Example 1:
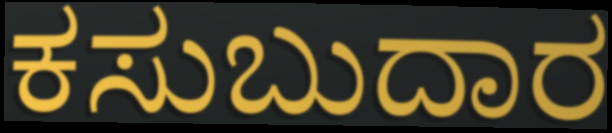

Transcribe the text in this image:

ಕಸುಬುದಾರ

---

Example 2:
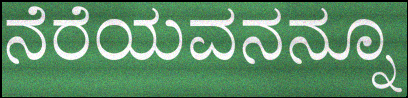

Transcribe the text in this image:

ನೆರೆಯವನನ್ನೂ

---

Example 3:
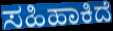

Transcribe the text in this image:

ಸಹಿಹಾಕಿದೆ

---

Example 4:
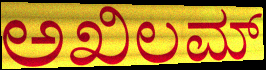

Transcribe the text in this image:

ಅಖಿಲಮ್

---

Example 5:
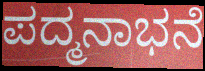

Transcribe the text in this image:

ಪದ್ಮನಾಭನೆ